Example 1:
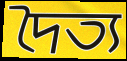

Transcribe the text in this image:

দৈত্য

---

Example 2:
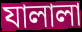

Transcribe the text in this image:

যালালা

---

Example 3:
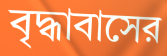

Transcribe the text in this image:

বৃদ্ধাবাসের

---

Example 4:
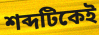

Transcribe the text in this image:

শব্দটিকেই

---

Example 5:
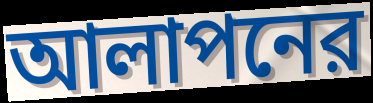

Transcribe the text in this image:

আলাপনের